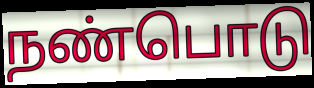
நண்பொடு